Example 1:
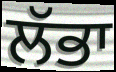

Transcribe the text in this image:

ਲੱਭਾ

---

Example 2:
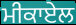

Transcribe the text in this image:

ਮੀਕਾਏਲ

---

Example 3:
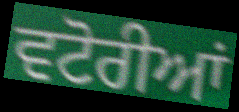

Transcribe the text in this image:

ਵਟੋਰੀਆਂ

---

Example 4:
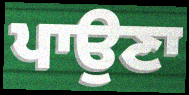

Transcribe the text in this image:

ਪਾਉਣਾ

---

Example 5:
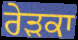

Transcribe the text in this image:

ਰੇੜਕਾ